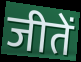
जीतें